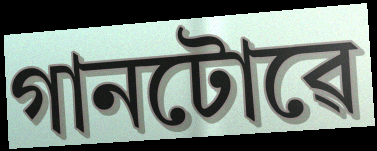
গানটোৱে